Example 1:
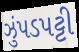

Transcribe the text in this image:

ઝુંપડપટ્ટી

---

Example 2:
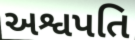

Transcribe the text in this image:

અશ્વપતિ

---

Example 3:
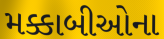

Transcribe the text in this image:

મક્કાબીઓના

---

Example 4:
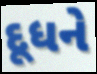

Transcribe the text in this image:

દૂધને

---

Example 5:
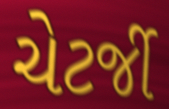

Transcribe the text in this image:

ચેટર્જી